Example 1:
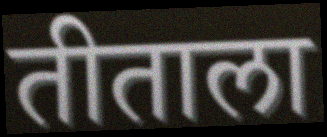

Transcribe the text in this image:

तीताला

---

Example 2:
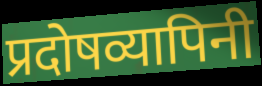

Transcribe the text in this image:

प्रदोषव्यापिनी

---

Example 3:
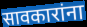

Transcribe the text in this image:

सावकारांना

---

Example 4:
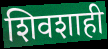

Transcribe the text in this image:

शिवशाही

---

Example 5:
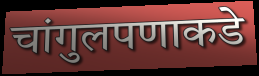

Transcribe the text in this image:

चांगुलपणाकडे